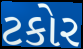
ટકોર